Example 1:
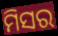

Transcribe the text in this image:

ମିସର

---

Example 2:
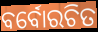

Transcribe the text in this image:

ବର୍ବୋରଚିତ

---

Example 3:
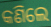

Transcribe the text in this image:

କଣିଲେ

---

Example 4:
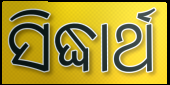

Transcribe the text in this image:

ସିଦ୍ଧାର୍ଥ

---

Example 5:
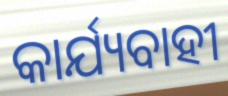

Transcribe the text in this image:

କାର୍ଯ୍ୟବାହୀ